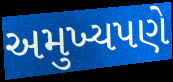
અમુખ્યપણે